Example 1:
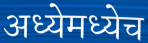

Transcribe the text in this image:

अध्येमध्येच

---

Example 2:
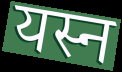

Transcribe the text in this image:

यस्न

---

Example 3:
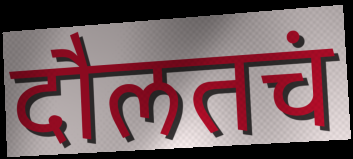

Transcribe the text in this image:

दौलतचं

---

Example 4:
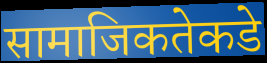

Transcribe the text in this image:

सामाजिकतेकडे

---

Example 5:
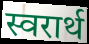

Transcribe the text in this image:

स्वरार्थ